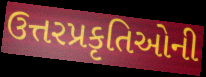
ઉત્તરપ્રકૃતિઓની